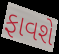
ફાવશે